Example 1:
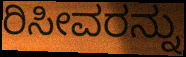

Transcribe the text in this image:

ರಿಸೀವರನ್ನು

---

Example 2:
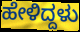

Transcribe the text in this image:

ಹೇಳಿದ್ದಳು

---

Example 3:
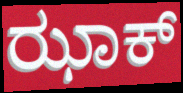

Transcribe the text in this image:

ಝಾಕ್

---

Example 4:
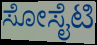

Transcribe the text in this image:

ಸೋಸೈಟಿ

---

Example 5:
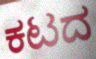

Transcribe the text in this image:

ಕಟದ